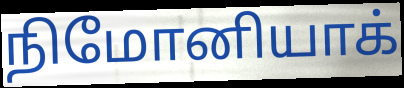
நிமோனியாக்